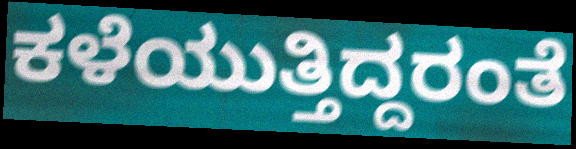
ಕಳೆಯುತ್ತಿದ್ದರಂತೆ